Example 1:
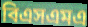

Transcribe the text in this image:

বিএসএমএ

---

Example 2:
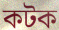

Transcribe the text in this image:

কটক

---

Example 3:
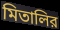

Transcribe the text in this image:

মিতালির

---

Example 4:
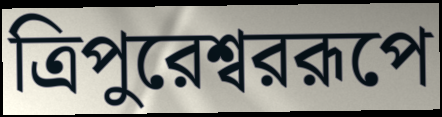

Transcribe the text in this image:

ত্রিপুরেশ্বররূপে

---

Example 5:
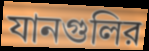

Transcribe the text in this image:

যানগুলির